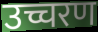
उच्चरण